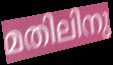
മതിലിനു